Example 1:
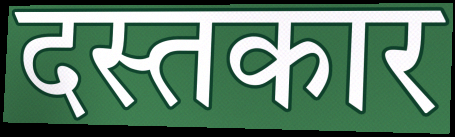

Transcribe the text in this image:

दस्‍तकार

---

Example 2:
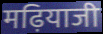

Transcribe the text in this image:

मढ़ियाजी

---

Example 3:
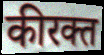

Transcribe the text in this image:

कीरक्त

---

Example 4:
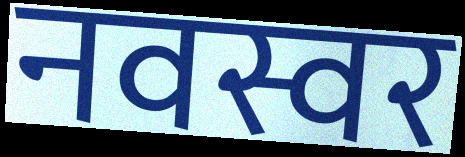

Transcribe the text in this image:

नवस्वर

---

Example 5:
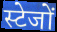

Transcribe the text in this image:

स्टेजों